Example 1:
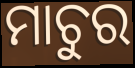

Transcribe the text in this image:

ମାଚୁର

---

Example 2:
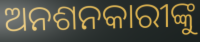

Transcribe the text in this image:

ଅନଶନକାରୀଙ୍କୁ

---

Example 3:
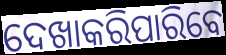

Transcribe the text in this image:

ଦେଖାକରିପାରିବେ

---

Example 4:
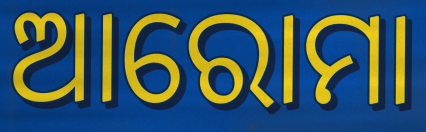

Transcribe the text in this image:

ଆରୋମା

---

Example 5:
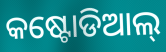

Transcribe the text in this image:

କଷ୍ଟୋଡିଆଲ୍